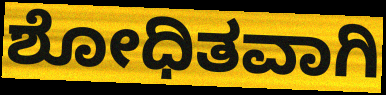
ಶೋಧಿತವಾಗಿ